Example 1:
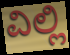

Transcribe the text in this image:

ವಿಲ್ಲಿ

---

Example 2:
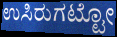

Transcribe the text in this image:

ಉಸಿರುಗಟ್ಟೋ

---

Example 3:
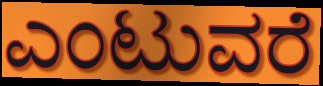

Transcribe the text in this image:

ಎಂಟುವರೆ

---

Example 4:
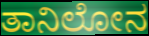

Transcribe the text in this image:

ತಾನಿಲೋನ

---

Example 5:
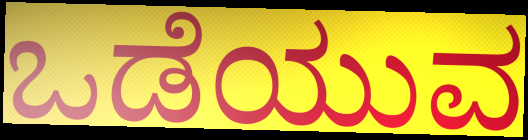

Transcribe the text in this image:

ಒಡೆಯುವ